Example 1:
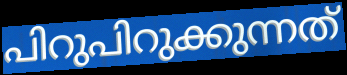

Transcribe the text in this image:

പിറുപിറുക്കുന്നത്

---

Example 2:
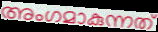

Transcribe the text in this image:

അംഗമാകുന്നത്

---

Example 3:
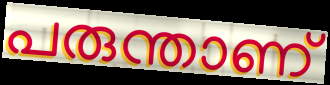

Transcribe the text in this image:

പരുന്താണ്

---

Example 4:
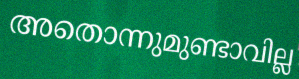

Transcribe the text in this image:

അതൊന്നുമുണ്ടാവില്ല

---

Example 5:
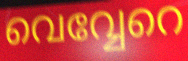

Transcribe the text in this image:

വെവ്വേറെ